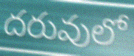
దరువులో